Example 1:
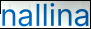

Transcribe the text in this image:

nallina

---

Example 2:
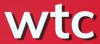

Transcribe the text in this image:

wtc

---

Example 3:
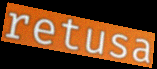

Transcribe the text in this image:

retusa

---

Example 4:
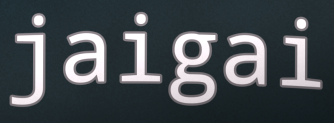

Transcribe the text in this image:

jaigai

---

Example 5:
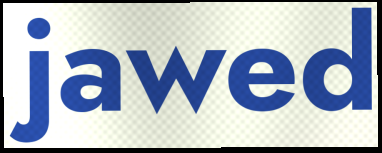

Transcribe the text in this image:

jawed